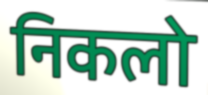
निकलो